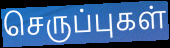
செருப்புகள்